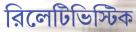
রিলেটিভিস্টিক